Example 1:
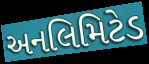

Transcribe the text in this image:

અનલિમિટેડ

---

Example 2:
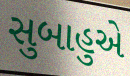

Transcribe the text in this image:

સુબાહુએ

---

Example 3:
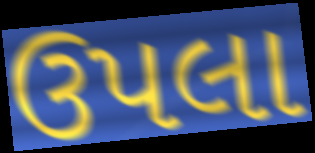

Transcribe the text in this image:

ઉપલા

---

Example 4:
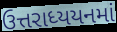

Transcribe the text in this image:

ઉત્તરાધ્યયનમાં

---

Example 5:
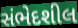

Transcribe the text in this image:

સંભેદશીલ